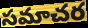
సమాచర